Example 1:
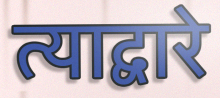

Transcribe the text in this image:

त्याद्वारे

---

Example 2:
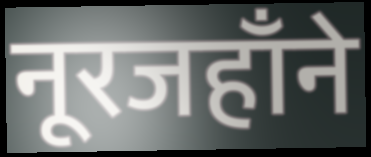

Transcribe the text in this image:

नूरजहाँने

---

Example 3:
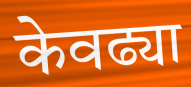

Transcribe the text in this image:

केवढ्या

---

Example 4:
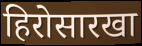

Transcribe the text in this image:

हिरोसारखा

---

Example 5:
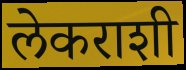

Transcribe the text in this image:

लेकराशी